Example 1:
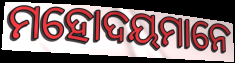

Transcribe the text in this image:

ମହୋଦୟମାନେ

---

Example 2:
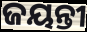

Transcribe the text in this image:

ଜୟନ୍ତୀ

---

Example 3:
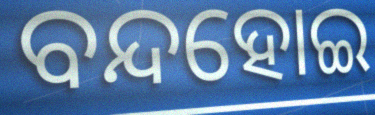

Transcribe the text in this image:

ବନ୍ଦହୋଇ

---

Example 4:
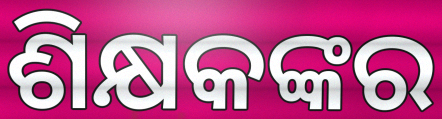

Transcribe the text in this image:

ଶିକ୍ଷକଙ୍କର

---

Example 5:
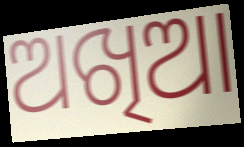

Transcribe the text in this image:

ଅଖିଆ